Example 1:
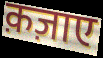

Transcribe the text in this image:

क़ज़ाए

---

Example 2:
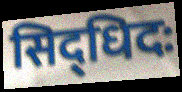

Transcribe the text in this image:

सिद्धिदः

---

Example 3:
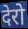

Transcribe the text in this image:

देरो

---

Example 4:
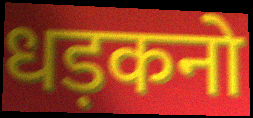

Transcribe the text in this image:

धड़कनो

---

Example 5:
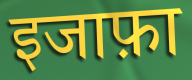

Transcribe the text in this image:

इजाफ़ा